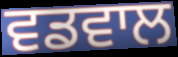
ਵਡਵਾਲ